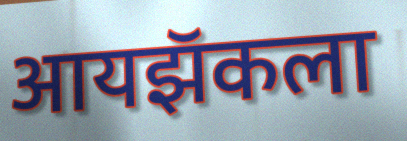
आयझॅकला